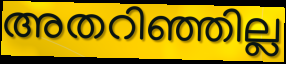
അതറിഞ്ഞില്ല